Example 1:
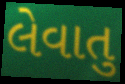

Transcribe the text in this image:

લેવાતુ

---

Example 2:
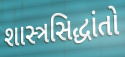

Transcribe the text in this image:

શાસ્ત્રસિદ્ધાંતો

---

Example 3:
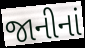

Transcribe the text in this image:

જાનીનાં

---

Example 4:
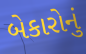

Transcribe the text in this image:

બેકારોનું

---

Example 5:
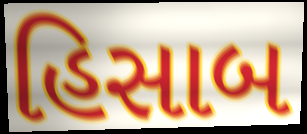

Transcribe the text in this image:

હિસાબ